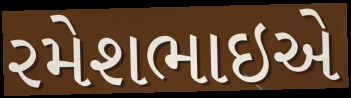
રમેશભાઇએ